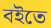
বইতে